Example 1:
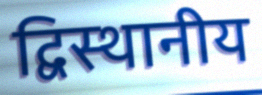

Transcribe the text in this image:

द्विस्थानीय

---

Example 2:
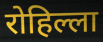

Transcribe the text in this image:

रोहिल्ला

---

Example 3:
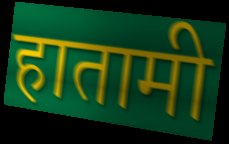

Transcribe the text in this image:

हातामी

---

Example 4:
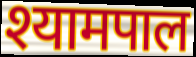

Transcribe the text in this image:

श्यामपाल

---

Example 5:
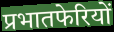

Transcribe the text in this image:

प्रभातफेरियों